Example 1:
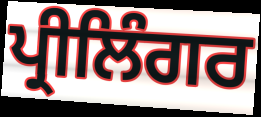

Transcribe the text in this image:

ਪ੍ਰੀਲਿੰਗਰ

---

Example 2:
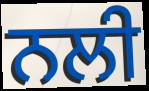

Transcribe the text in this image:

ਨਲੀ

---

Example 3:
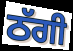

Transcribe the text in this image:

ਠੱਗੀ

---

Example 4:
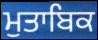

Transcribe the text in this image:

ਮੁਤਾਬਿਕ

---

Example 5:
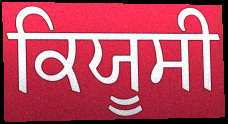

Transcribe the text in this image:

ਕਿਯੂਸੀ